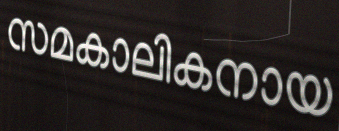
സമകാലികനായ